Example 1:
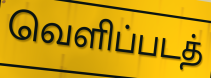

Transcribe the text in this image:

வெளிப்படத்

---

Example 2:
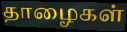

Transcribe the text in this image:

தாழைகள்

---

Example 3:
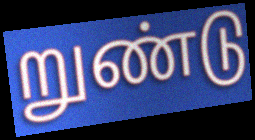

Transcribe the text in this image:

றுண்டு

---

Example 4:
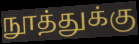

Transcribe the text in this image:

நூத்துக்கு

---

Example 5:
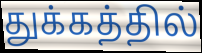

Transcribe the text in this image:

துக்கத்தில்